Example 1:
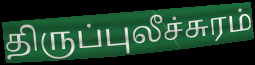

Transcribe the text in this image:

திருப்புலீச்சுரம்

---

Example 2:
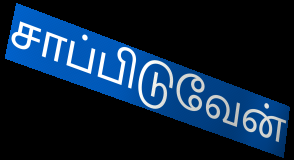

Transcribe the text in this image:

சாப்பிடுவேன்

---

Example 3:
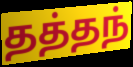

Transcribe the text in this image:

தத்தந்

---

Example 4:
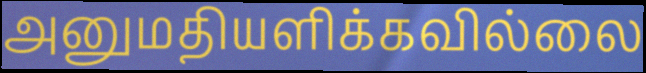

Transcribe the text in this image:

அனுமதியளிக்கவில்லை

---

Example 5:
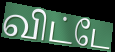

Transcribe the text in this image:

விட்டே